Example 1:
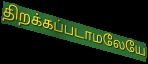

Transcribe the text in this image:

திறக்கப்படாமலேயே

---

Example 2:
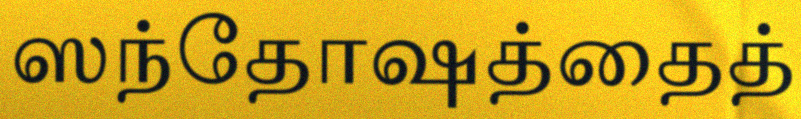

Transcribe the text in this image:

ஸந்தோஷத்தைத்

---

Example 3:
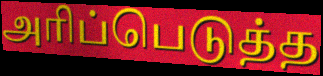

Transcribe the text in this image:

அரிப்பெடுத்த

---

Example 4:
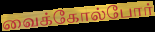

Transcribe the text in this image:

வைக்கோல்போர்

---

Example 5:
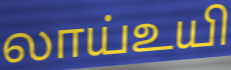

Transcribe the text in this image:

லாய்உயி